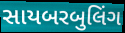
સાયબરબુલિંગ